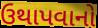
ઉથાપવાનો